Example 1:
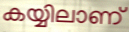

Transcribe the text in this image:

കയ്യിലാണ്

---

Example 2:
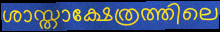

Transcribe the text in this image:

ശാസ്താക്ഷേത്രത്തിലെ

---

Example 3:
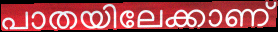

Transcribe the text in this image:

പാതയിലേക്കാണ്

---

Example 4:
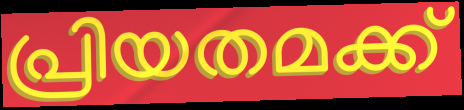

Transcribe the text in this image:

പ്രിയതമക്ക്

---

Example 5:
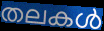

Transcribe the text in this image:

തലകൾ